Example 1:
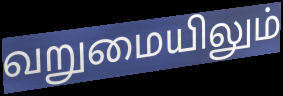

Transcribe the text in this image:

வறுமையிலும்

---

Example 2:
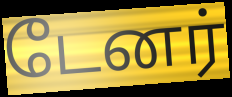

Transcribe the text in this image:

டேனர்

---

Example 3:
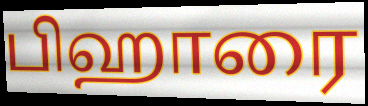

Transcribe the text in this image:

பிஹாரை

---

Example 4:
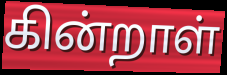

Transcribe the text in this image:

கின்றாள்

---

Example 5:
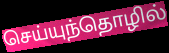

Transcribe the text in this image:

செய்யுந்தொழில்